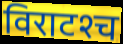
विराटश्च